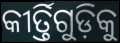
କୀର୍ତ୍ତିଗୁଡ଼ିକୁ